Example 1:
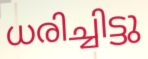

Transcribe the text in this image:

ധരിച്ചിട്ടു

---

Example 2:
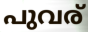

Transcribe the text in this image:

പുവര്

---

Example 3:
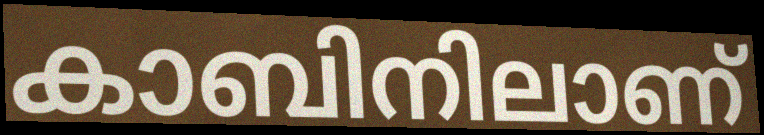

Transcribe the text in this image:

കാബിനിലാണ്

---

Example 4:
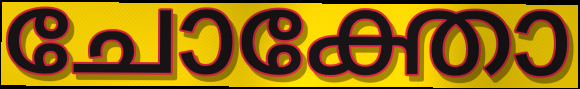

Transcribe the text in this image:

ചോക്തോ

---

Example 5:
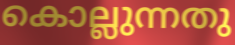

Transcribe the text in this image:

കൊല്ലുന്നതു